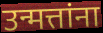
उन्मत्तांना